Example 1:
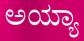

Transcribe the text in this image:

ಅಯ್ಯಾ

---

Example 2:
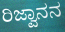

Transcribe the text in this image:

ರಿಜ್ವಾನನ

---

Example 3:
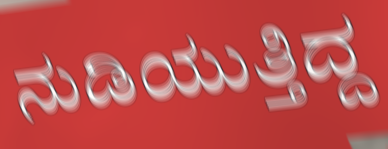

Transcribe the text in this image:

ನುಡಿಯುತ್ತಿದ್ದ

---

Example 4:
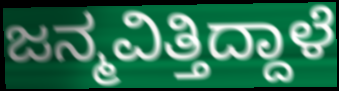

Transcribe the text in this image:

ಜನ್ಮವಿತ್ತಿದ್ದಾಳೆ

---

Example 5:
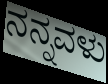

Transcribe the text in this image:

ನನ್ನವಳು